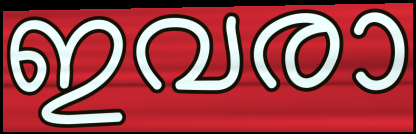
ഇവരാ